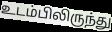
உடம்பிலிருந்து